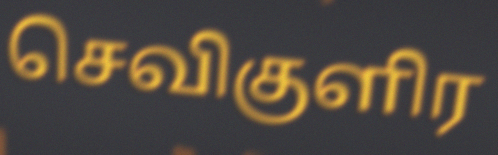
செவிகுளிர